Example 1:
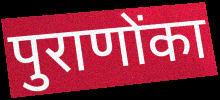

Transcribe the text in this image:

पुराणोंका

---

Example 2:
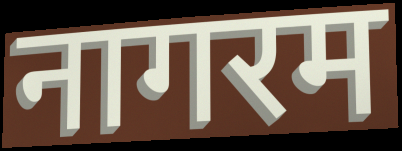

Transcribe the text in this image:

नागरम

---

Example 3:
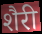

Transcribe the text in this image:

शैरी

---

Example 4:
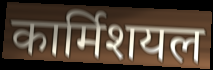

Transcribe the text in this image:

कार्मिशयल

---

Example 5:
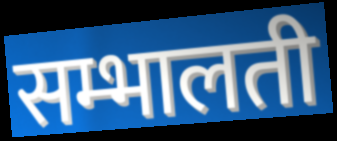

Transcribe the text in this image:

सम्भालती